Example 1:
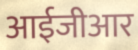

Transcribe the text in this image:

आईजीआर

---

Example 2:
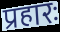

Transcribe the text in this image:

प्रहारः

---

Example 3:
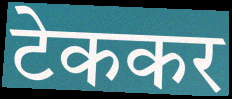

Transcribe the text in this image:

टेककर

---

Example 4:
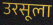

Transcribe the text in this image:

उरसूला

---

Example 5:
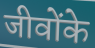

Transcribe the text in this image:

जीवोंके